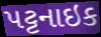
પટ્ટનાઇક